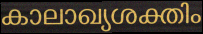
കാലാഖ്യശക്തിം